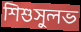
শিশুসুলভ